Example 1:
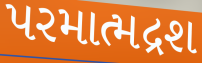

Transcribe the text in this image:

પરમાત્મદ્રશ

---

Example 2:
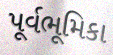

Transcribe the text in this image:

પૂર્વભૂમિકા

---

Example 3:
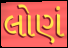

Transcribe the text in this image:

લોણં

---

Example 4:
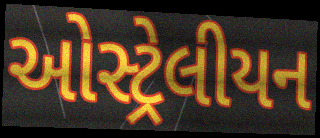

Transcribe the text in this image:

ઓસ્ટ્રેલીયન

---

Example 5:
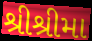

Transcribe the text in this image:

શ્રીશ્રીમા